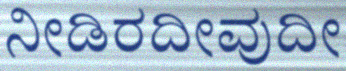
ನೀಡಿರದೀವುದೀ